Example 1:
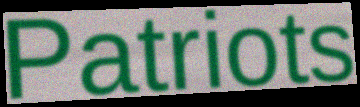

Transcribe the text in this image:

Patriots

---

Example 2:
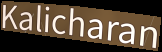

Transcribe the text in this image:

Kalicharan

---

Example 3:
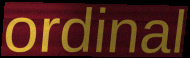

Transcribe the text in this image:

ordinal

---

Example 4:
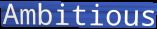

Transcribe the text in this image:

Ambitious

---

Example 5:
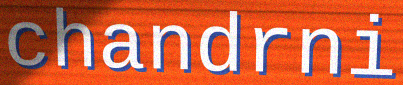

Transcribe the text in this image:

chandrni